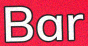
Bar